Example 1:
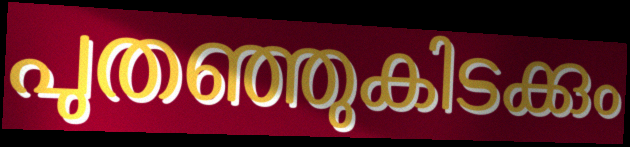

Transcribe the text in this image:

പുതഞ്ഞുകിടക്കും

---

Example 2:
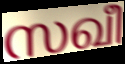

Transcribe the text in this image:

സഖീ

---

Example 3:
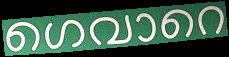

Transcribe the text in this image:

ഗെവാറെ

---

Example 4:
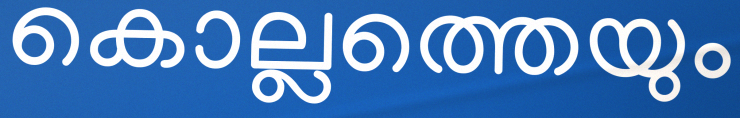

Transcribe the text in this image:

കൊല്ലത്തെയും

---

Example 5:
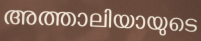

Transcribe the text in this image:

അത്താലിയായുടെ